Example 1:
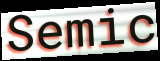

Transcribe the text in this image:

Semic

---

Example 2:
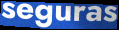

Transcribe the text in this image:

seguras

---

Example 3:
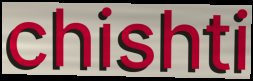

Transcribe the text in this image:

chishti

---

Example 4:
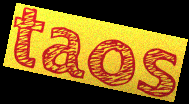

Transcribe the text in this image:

taos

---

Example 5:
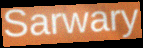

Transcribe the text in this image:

Sarwary